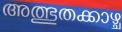
അത്ഭുതക്കാഴ്ച